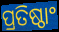
ପ୍ରତିଷ୍ଠାଂ